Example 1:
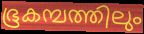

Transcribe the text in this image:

ഭൂകമ്പത്തിലും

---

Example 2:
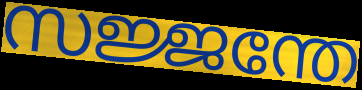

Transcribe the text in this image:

സജ്ജന്തേ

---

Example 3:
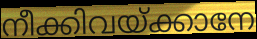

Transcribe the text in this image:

നീക്കിവയ്ക്കാനേ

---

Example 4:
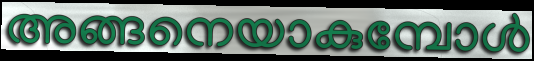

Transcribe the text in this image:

അങ്ങനെയാകുമ്പോൾ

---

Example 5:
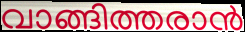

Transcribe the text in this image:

വാങ്ങിത്തരാൻ